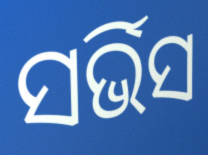
ସର୍ଭିସ